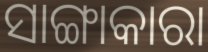
ସାଙ୍ଗାକାରା